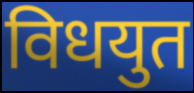
विधयुत